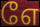
எே